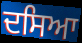
ਦਸਿਆ